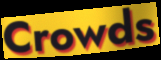
Crowds